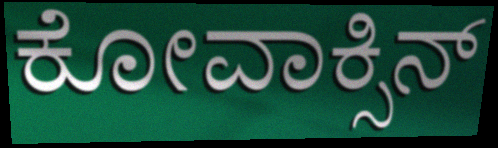
ಕೋವಾಕ್ಸಿನ್